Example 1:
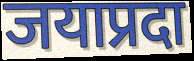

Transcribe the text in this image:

जयाप्रदा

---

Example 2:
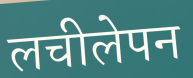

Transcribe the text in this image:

लचीलेपन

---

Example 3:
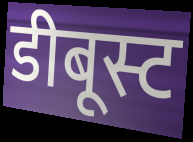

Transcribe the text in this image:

डीबूस्ट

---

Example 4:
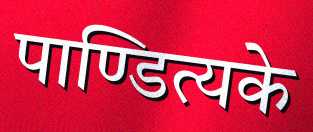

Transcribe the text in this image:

पाण्डित्यके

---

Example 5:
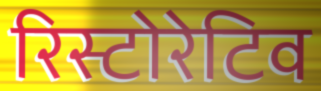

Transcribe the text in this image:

रिस्टोरेटिव